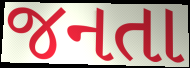
જનતા